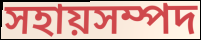
সহায়সম্পদ